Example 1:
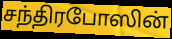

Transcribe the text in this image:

சந்திரபோஸின்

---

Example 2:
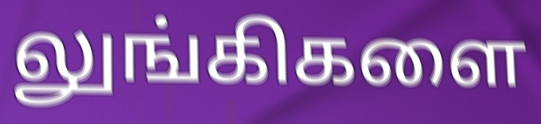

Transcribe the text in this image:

லுங்கிகளை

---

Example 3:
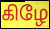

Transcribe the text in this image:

கிழே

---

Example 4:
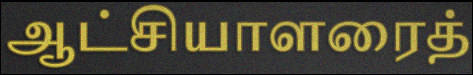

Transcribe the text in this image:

ஆட்சியாளரைத்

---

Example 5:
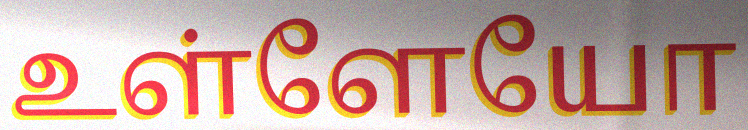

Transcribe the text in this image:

உள்ளேயோ